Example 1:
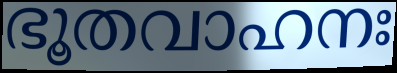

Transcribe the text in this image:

ഭൂതവാഹനഃ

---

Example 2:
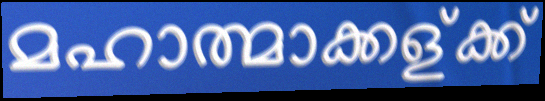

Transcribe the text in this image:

മഹാത്മാക്കള്ക്ക്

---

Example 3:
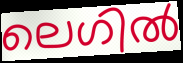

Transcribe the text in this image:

ലെഗിൽ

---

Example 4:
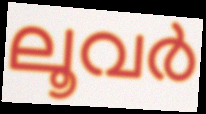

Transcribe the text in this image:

ലൂവർ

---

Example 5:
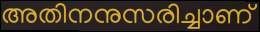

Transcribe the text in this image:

അതിനനുസരിച്ചാണ്